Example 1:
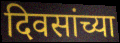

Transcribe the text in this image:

दिवसांच्या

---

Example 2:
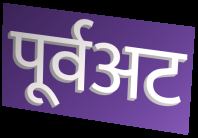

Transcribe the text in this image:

पूर्वअट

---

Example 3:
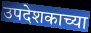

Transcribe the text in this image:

उपदेशकाच्या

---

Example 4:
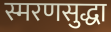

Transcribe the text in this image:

स्मरणसुद्धा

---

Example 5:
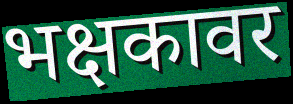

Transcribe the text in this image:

भक्षकावर